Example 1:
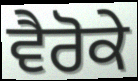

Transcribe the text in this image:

ਵੈਰੋਕੇ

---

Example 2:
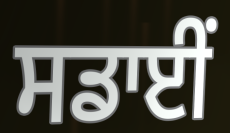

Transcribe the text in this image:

ਸਡਾਈਂ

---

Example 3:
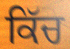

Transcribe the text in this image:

ਕਿੱਚ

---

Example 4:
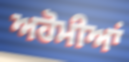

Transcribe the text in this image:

ਅਹੋਮੀਆਂ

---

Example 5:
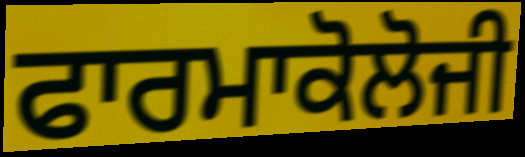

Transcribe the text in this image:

ਫਾਰਮਾਕੋਲੋਜੀ